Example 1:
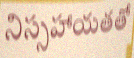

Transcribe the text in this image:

నిస్సహాయతతో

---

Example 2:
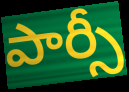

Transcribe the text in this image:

పార్సీ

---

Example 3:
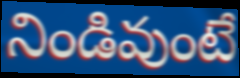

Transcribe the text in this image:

నిండివుంటే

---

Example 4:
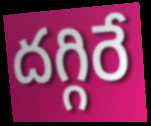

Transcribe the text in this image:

దగ్గిరే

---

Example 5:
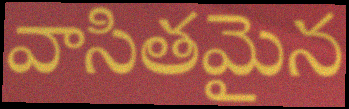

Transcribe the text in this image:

వాసితమైన